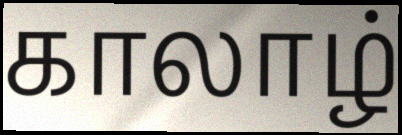
காலாழ்